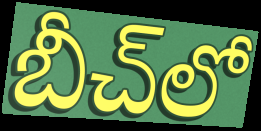
బీచ్‌లో